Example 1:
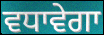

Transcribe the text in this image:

ਵਧਾਵੇਗਾ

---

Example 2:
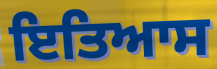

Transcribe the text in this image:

ਇਤਿਆਸ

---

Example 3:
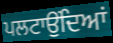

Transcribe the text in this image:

ਪਲਟਾਉਂਦਿਆਂ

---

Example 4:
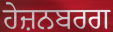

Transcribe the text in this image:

ਹੇਜ਼ਨਬਰਗ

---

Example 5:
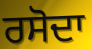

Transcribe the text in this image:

ਰਸੋਦਾ